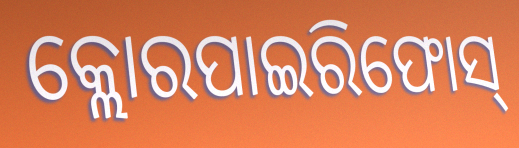
କ୍ଲୋରପାଇରିଫୋସ୍